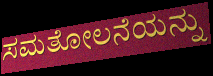
ಸಮತೋಲನೆಯನ್ನು